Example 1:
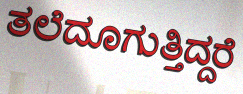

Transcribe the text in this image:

ತಲೆದೂಗುತ್ತಿದ್ದರೆ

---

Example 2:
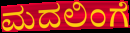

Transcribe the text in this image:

ಮದಲಿಂಗೆ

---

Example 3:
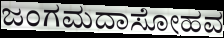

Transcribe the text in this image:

ಜಂಗಮದಾಸೋಹವ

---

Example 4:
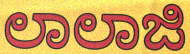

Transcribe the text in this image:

ಲಾಲಾಜಿ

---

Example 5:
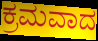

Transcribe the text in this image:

ಕ್ರಮವಾದ